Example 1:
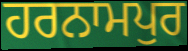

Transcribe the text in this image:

ਹਰਨਾਮਪੁਰ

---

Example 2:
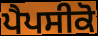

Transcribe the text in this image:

ਪੈਪਸੀਕੋ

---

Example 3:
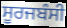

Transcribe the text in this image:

ਸੂਰਜਬੰਸੀ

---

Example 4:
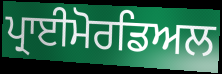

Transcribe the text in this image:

ਪ੍ਰਾਈਮੋਰਡਿਅਲ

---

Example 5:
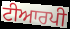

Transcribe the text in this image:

ਟੀਆਰਪੀ